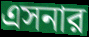
এসনার